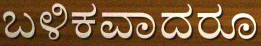
ಬಳಿಕವಾದರೂ